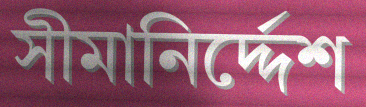
সীমানির্দ্দেশ